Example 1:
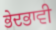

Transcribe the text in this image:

ਭੇਦਭਾਵੀ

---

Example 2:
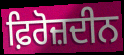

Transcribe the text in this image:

ਫ਼ਿਰੋਜ਼ਦੀਨ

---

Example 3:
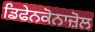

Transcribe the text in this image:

ਡਿਫੇਨਕੋਨਾਜ਼ੋਲ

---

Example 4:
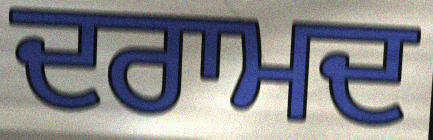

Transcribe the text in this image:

ਦਰਾਮਦ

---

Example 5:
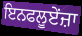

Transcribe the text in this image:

ਇਨਫਲੂਏਂਜ਼ਾ